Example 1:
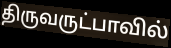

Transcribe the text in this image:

திருவருட்பாவில்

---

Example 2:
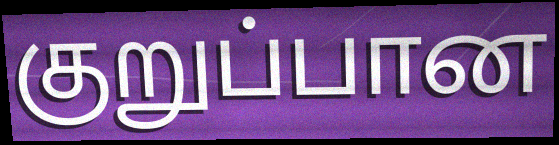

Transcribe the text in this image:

குறுப்பான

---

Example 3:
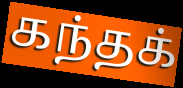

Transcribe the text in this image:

கந்தக்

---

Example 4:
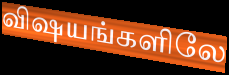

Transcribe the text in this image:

விஷயங்களிலே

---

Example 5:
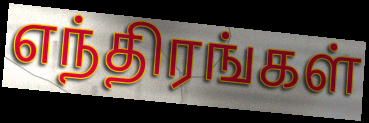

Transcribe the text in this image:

எந்திரங்கள்